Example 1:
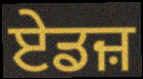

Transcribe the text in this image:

ਏਡਜ਼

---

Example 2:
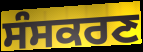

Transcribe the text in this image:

ਸੰਸਕਰਣ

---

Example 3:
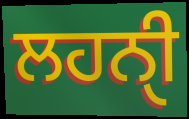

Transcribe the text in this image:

ਲਹਨੑੀ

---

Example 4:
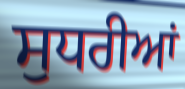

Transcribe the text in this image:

ਸੁਧਰੀਆਂ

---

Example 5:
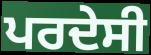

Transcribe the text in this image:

ਪਰਦੇਸੀ